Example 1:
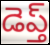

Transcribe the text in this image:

డెప్త్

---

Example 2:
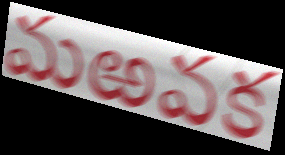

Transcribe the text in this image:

మఱవక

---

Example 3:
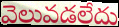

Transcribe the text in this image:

వెలువడలేదు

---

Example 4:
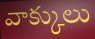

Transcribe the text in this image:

వాక్కులు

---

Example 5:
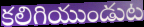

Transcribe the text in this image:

కలిగియుండుట